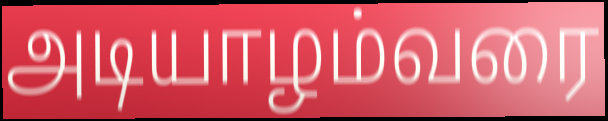
அடியாழம்வரை